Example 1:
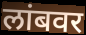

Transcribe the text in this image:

लांबवर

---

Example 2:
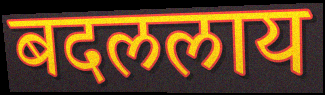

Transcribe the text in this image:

बदललाय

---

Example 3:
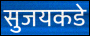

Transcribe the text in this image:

सुजयकडे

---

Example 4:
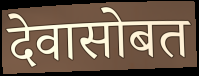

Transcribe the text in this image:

देवासोबत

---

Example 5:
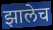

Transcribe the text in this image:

झालेच